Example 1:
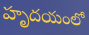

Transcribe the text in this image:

హృదయంలో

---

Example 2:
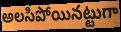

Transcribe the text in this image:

అలసిపోయినట్టుగా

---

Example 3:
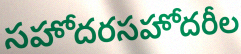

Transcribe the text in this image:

సహోదరసహోదరీల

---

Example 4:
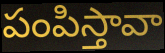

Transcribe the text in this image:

పంపిస్తావా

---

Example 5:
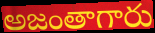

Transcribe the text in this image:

అజంతాగారు